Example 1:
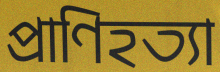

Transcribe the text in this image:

প্রাণিহত্যা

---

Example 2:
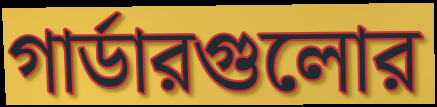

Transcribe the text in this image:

গার্ডারগুলোর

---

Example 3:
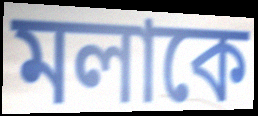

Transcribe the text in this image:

মলাকে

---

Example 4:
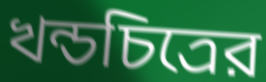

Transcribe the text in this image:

খন্ডচিত্রের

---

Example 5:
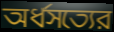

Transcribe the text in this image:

অর্ধসত্যের